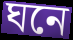
ঘনে